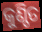
କୁଣ୍ଠିତ